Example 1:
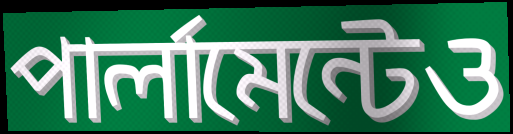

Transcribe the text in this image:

পার্লামেন্টেও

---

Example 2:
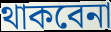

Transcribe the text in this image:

থাকবেনা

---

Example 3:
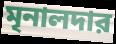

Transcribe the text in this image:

মৃনালদার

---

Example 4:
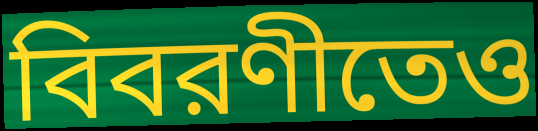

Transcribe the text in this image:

বিবরণীতেও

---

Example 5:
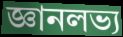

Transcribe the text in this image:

জ্ঞানলভ্য